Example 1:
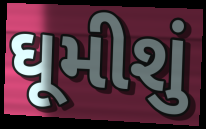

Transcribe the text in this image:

ઘૂમીશું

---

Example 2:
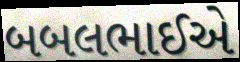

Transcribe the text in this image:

બબલભાઈએ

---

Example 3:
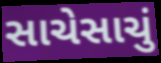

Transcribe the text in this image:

સાચેસાચું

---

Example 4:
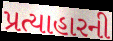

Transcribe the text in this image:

પ્રત્યાહારની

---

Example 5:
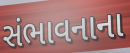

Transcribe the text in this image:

સંભાવનાના